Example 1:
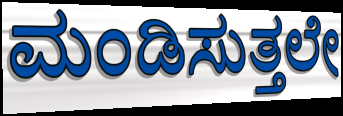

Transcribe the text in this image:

ಮಂಡಿಸುತ್ತಲೇ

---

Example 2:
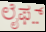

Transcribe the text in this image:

ಲೈಫ಼್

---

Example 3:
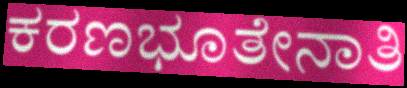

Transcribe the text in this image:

ಕರಣಭೂತೇನಾತಿ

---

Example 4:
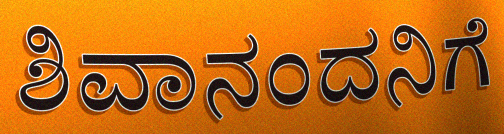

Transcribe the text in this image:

ಶಿವಾನಂದನಿಗೆ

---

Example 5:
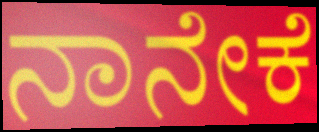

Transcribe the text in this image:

ನಾನೇಕೆ